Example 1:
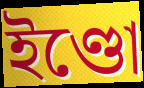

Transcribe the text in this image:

ইণ্ডো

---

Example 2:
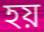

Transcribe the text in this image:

হয়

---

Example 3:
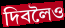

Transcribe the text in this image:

দিবলৈও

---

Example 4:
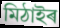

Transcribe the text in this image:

মিঠাইৰ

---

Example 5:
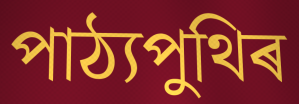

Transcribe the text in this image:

পাঠ্যপুথিৰ